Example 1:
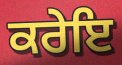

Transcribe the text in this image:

ਕਰੇਇ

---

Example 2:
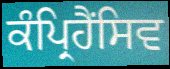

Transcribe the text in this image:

ਕੰਪ੍ਰਿਹੈਂਸਿਵ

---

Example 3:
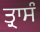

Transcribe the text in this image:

ਤ੍ਰਾਸੰ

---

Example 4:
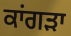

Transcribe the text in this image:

ਕਾਂਗਡ਼ਾ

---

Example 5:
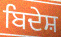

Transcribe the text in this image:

ਬਿਦੇਸ਼